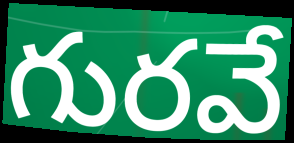
గురవే